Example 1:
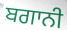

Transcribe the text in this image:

ਬਗਾਨੀ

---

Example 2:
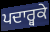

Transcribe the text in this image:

ਪਦਾਰ੍ਥਕੇ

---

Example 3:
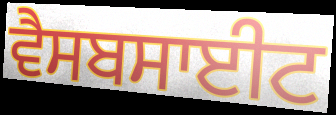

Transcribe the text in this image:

ਵੈਸਬਸਾਈਟ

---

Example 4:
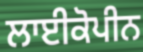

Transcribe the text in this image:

ਲਾਈਕੋਪੀਨ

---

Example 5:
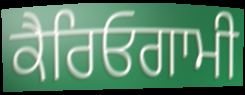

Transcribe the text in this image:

ਕੈਰਿਓਗਾਮੀ